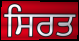
ਸਿਰਤ